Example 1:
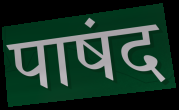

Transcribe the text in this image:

पाषंद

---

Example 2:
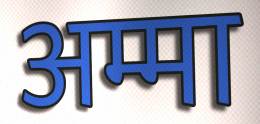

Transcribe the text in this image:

अम्‍मा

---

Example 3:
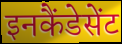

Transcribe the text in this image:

इनकैंडेसेंट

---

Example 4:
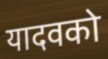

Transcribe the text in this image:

यादवको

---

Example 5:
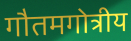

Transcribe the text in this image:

गौतमगोत्रीय